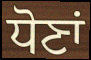
ਧੋਣਾਂ